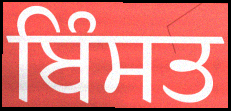
ਬਿੰਸਤ